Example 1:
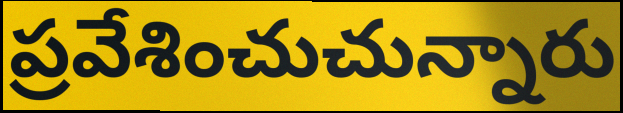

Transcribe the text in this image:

ప్రవేశించుచున్నారు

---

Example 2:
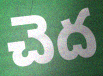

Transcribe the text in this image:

చెద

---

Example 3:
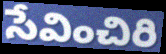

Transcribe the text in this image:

సేవించిరి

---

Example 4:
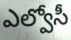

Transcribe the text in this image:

ఎల్వోసీ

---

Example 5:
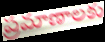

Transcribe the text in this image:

ప్రమాణాలకు